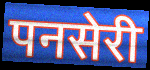
पनसेरी